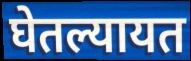
घेतल्यायत